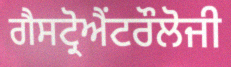
ਗੈਸਟ੍ਰੋਐਂਟਰੌਲੋਜੀ